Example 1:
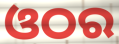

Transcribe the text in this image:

ଓଠର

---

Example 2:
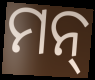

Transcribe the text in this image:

ମନ୍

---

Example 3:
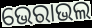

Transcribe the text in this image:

ଭେରାଭଲ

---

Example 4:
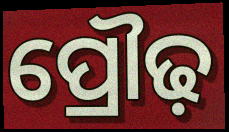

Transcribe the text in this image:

ପ୍ରୌଢ଼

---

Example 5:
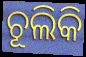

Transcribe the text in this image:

ଚୂଲିକି